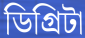
ডিগ্রিটা